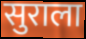
सुराला